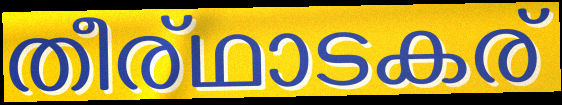
തീര്ഥാടകര്